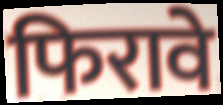
फिरावे